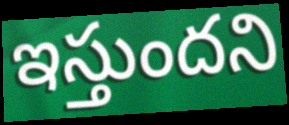
ఇస్తుందని